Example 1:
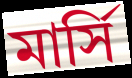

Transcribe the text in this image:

মার্সি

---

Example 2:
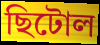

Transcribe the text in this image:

ছিটোল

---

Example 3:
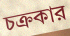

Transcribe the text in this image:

চক্রকার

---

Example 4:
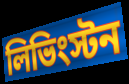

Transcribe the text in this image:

লিভিংস্টন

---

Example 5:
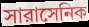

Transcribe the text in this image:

সারাসেনিক